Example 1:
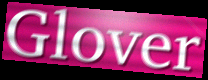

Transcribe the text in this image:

Glover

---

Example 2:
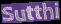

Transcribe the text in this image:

Sutthi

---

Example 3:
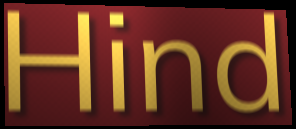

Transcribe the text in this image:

Hind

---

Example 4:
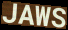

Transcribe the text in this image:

JAWS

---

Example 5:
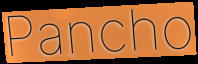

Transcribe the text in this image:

Pancho